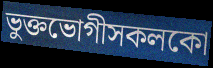
ভুক্তভোগীসকলকো